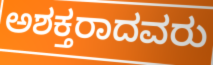
ಅಶಕ್ತರಾದವರು